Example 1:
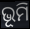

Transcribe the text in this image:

ଭୂମି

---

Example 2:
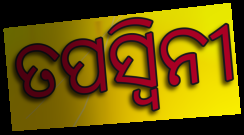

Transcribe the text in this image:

ତପସ୍ଵିନୀ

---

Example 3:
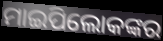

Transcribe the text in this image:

ମାଇପିଲୋକଙ୍କର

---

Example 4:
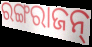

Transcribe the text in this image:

ରଙ୍ଗରାଜନ୍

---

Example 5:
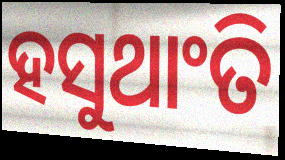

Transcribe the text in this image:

ହସୁଥାଂତି